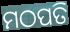
ମଠପତି